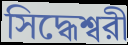
সিদ্ধেশ্বরী